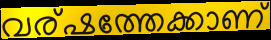
വര്ഷത്തേക്കാണ്